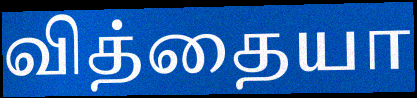
வித்தையா